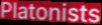
Platonists